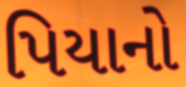
પિયાનો